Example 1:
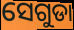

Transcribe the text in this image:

ସେଗୁଡା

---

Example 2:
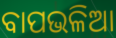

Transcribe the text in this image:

ବାପଭଳିଆ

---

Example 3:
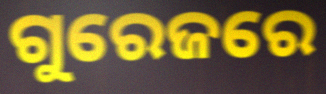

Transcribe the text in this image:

ଗୁରେଜରେ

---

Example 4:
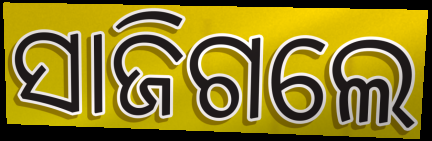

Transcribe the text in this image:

ସାଜିଗଲେ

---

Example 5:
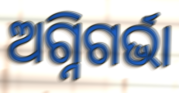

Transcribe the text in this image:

ଅଗ୍ନିଗର୍ଭା